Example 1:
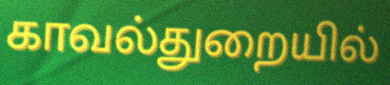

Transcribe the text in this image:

காவல்துறையில்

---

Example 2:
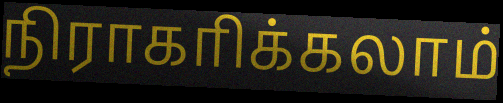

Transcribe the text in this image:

நிராகரிக்கலாம்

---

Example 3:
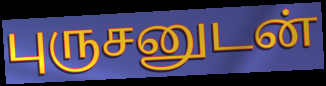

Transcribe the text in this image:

புருசனுடன்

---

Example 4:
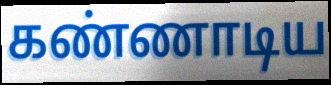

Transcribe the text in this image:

கண்ணாடிய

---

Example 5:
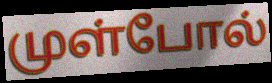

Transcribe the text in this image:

முள்போல்